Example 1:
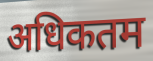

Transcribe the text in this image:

अधिकतम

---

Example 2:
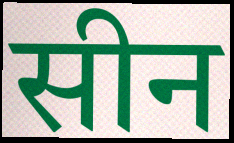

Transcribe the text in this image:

सीन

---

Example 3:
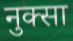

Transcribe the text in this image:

नुक्सा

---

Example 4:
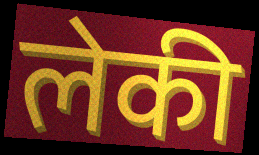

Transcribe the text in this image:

लेकी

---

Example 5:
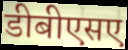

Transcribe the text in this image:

डीबीएसए